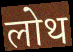
लोथ